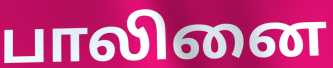
பாலினை